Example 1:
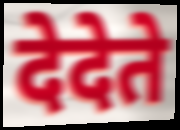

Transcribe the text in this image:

देदेते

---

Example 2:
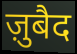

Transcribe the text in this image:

ज़ुबैद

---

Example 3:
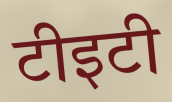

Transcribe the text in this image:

टीइटी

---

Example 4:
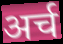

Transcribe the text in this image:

अर्च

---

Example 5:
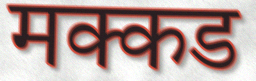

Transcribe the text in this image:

मक्कड